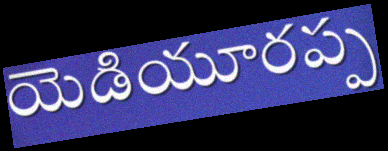
యెడియూరప్ప